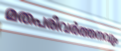
മതപരിവർത്തനവും